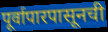
पूर्वापारपासूनची